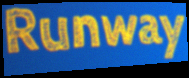
Runway